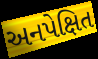
અનપેક્ષિત